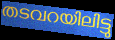
തടവറയിലിട്ടു